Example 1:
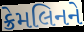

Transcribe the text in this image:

ક્રેમલિનને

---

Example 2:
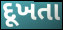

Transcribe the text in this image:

દૂખતા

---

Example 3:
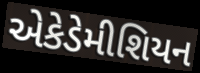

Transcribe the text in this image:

એકેડેમીશિયન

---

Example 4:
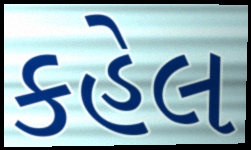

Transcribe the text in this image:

કહેલ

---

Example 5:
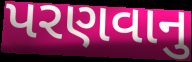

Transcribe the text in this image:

પરણવાનુ